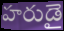
హరుడై